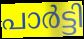
പാർട്ടി